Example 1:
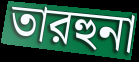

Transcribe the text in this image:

তারহুনা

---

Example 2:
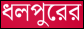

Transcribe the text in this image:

ধলপুরের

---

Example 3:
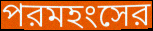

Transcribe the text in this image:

পরমহংসের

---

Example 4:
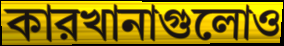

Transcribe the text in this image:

কারখানাগুলোও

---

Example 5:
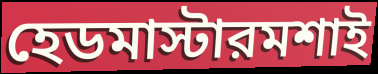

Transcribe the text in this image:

হেডমাস্টারমশাই